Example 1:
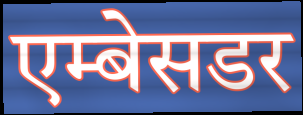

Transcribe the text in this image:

एम्‍बेसडर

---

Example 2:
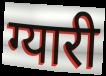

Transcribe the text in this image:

ग्यारी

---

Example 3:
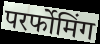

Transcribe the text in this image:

परर्फोमिंग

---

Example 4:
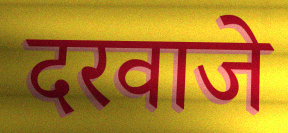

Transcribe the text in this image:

दरवाजे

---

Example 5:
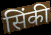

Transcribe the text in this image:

सिंकी